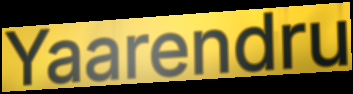
Yaarendru